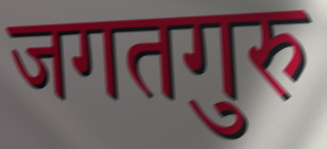
जगतगुरु